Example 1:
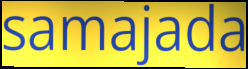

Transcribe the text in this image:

samajada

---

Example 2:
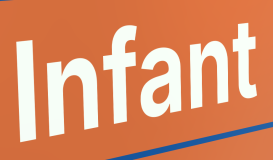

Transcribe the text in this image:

Infant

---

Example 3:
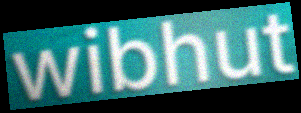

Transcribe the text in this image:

wibhut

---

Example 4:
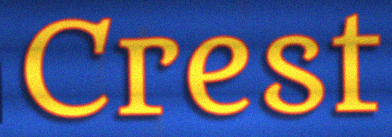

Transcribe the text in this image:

Crest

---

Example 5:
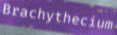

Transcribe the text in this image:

Brachythecium